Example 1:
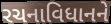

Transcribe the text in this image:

રચનાવિધાનને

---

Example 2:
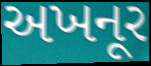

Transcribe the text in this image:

અખનૂર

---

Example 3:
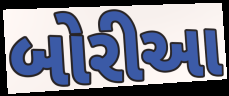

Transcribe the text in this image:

બોરીઆ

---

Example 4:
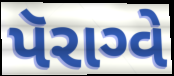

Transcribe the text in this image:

પૅરાગ્વે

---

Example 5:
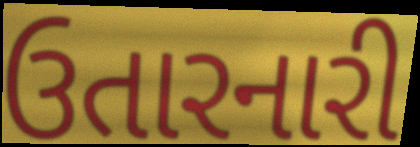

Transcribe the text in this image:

ઉતારનારી